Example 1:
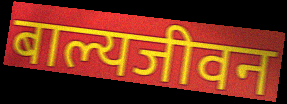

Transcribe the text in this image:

बाल्यजीवन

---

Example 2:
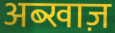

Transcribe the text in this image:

अब्खाज़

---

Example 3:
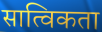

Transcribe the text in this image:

सात्विकता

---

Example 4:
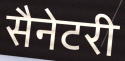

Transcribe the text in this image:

सैनेटरी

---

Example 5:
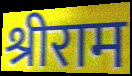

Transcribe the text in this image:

श्रीराम